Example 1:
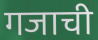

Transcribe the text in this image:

गजाची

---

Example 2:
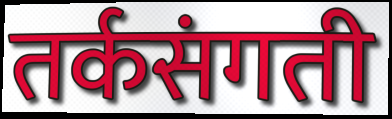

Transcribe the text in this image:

तर्कसंगती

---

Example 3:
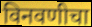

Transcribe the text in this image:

विनवणीचा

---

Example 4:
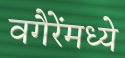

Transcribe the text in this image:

वगैरेंमध्ये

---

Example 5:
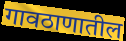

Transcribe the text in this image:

गावठाणातील